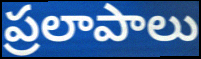
ప్రలాపాలు